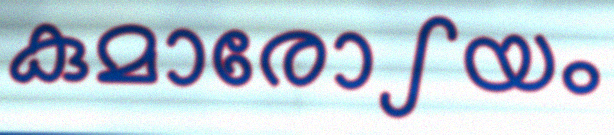
കുമാരോഽയം